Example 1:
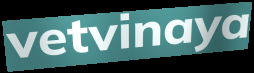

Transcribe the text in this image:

vetvinaya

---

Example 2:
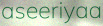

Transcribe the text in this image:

aseeriyaa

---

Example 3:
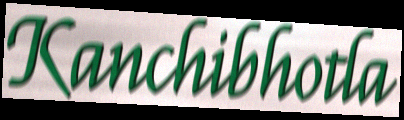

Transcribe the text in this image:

Kanchibhotla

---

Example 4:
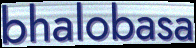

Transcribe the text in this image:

bhalobasa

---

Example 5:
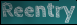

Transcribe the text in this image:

Reentry